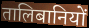
तालिबानियों